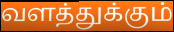
வளத்துக்கும்